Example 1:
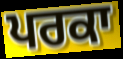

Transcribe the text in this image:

ਪਰਕਾ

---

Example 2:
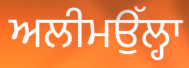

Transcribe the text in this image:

ਅਲੀਮਉੱਲ੍ਹਾ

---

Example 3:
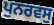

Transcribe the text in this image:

ਪੁਨਰਵਸੁ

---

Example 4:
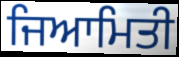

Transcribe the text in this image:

ਜਿਆਮਿਤੀ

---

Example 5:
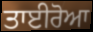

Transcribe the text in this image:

ਤਾਈਰੋਆ